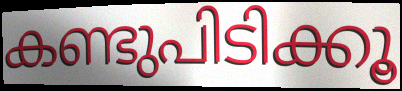
കണ്ടുപിടിക്കൂ